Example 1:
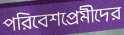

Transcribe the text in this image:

পরিবেশপ্রেমীদের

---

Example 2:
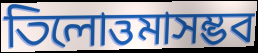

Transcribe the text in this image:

তিলোত্তমাসম্ভব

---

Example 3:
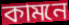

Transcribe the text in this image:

কামনে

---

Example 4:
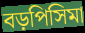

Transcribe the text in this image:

বড়পিসিমা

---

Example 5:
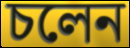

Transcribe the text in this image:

চলেন